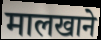
मालखाने